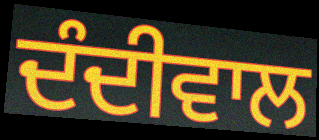
ਦੰਦੀਵਾਲ